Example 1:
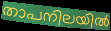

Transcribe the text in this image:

താപനിലയിൽ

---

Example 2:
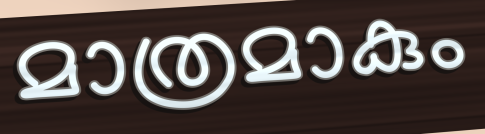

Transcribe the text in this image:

മാത്രമാകും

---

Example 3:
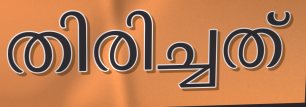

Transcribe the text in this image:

തിരിച്ചത്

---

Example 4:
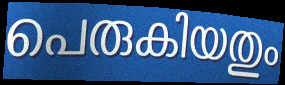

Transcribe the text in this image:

പെരുകിയതും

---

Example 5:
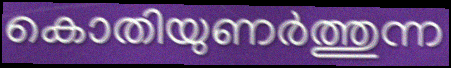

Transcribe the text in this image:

കൊതിയുണർത്തുന്ന